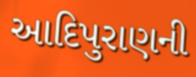
આદિપુરાણની